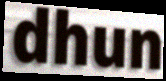
dhun